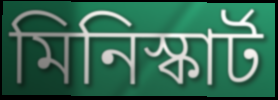
মিনিস্কার্ট